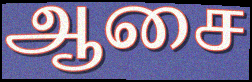
ஆசை